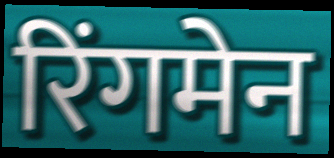
रिंगमेन